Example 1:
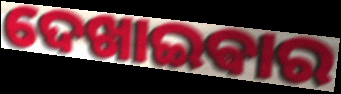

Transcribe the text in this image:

ଦେଖାଇଵାର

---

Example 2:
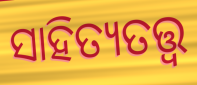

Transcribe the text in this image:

ସାହିତ୍ୟତତ୍ତ୍ୱ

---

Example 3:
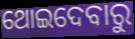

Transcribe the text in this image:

ଥୋଇଦେବାରୁ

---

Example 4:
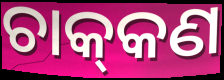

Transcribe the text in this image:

ଚାକ୍‌କଣ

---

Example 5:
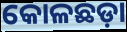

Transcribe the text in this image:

କୋଳଛଡ଼ା